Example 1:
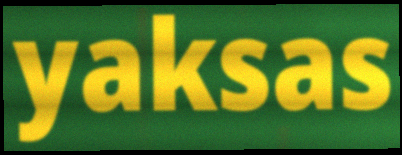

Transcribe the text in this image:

yaksas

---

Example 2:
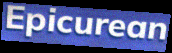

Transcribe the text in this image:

Epicurean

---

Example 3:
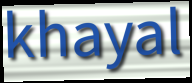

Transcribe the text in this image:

khayal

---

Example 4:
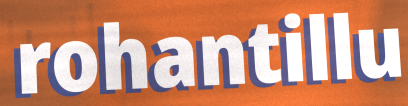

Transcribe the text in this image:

rohantillu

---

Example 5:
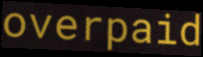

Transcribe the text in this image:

overpaid